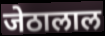
जेठालाल